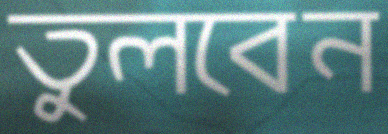
তুলবেন